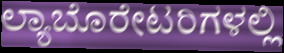
ಲ್ಯಾಬೊರೇಟರಿಗಳಲ್ಲಿ